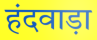
हंदवाड़ा